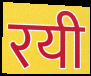
रयी